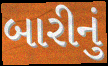
બારીનું